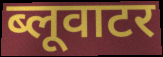
ब्लूवाटर